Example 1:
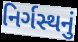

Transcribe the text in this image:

નિર્ગસ્થનું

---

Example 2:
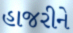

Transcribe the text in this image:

હાજરીને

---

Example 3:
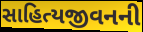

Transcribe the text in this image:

સાહિત્યજીવનની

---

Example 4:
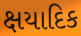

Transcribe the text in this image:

ક્ષયાદિક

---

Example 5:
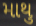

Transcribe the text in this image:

માથુ